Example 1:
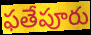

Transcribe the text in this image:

ఫతేపూరు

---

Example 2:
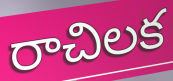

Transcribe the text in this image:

రాచిలక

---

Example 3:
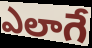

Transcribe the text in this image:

ఎలాగే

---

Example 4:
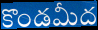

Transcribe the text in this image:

కొండమీద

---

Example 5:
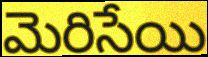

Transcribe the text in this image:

మెరిసేయి